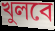
খুলবে